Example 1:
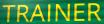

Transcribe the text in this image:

TRAINER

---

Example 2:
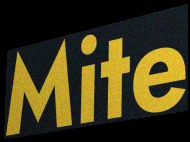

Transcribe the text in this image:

Mite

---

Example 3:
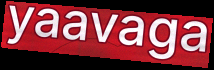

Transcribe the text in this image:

yaavaga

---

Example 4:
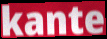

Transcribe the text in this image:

kante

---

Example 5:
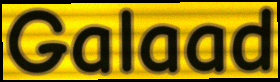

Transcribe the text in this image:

Galaad